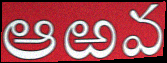
ఆఱవ